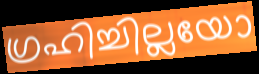
ഗ്രഹിച്ചില്ലയോ